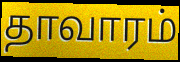
தாவாரம்